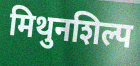
मिथुनशिल्प